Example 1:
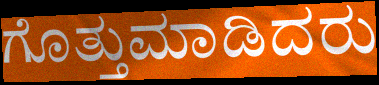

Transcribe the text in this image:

ಗೊತ್ತುಮಾಡಿದರು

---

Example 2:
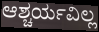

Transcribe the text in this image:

ಆಶ್ಚರ್ಯವಿಲ್ಲ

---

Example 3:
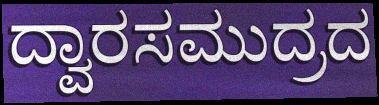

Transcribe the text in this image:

ದ್ವಾರಸಮುದ್ರದ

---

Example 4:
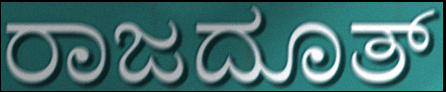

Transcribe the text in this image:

ರಾಜದೂತ್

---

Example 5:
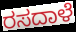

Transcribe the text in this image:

ರಸದಾಳೆ